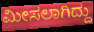
ಮೀಸಲಾಗಿದ್ದು